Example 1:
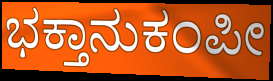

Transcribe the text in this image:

ಭಕ್ತಾನುಕಂಪೀ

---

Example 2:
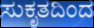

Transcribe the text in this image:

ಸುಕೃತದಿಂದ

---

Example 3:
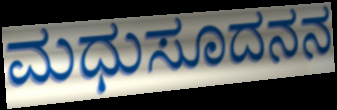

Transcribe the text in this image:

ಮಧುಸೂದನನ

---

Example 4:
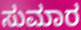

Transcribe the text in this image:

ಸುಮಾರ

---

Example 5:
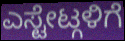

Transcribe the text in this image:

ಎಸ್ಟೇಟ್ಗಳಿಗೆ